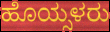
ಹೊಯ್ಸಳರು